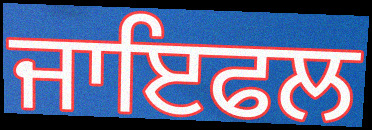
ਜਾਇਫਲ